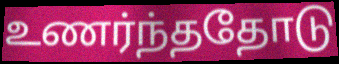
உணர்ந்ததோடு